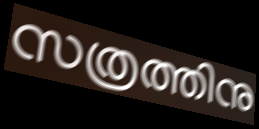
സത്രത്തിനു